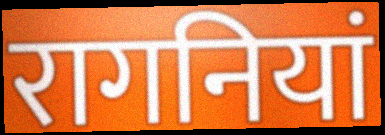
रागनियां